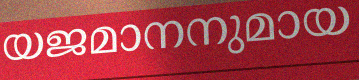
യജമാനനുമായ